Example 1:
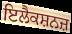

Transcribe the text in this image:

ਇਲੈਕਸ਼ਨਜ਼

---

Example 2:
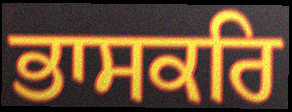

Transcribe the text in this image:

ਭਾਸਕਰਿ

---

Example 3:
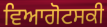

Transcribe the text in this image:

ਵਿਆਗੋਟਸਕੀ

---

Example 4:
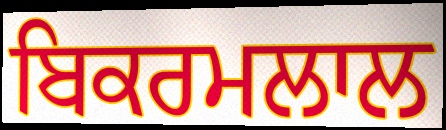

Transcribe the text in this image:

ਬਿਕਰਮਲਾਲ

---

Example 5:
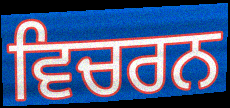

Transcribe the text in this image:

ਵਿਚਰਨ